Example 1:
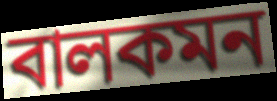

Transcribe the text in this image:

বালকমন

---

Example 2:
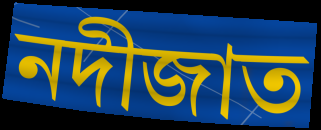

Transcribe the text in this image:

নদীজাত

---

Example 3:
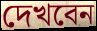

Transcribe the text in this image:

দেখবেন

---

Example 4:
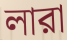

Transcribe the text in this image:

লারা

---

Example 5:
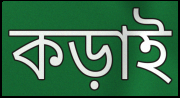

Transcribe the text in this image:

কড়াই